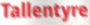
Tallentyre